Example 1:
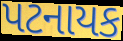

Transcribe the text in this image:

પટનાયક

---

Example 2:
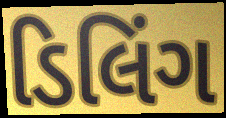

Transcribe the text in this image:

ડિલિંગ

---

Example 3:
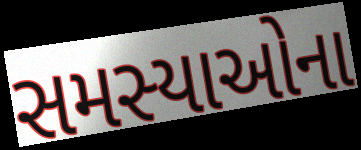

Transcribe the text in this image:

સમસ્યાઓના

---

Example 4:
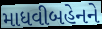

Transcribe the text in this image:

માધવીબહેનને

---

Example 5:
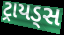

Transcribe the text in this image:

ટ્રાયડ્સ